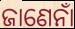
ଜାଣେନାଁ